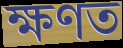
ক্ষণত